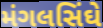
મંગલસિંઘે